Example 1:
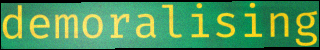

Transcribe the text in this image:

demoralising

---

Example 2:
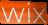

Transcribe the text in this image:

wix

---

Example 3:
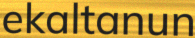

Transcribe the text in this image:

ekaltanun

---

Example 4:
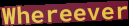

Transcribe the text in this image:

Whereever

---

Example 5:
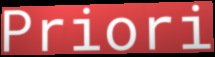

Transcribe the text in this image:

Priori